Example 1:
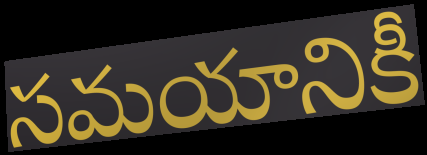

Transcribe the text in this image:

సమయానికీ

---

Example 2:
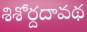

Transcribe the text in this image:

శిశోర్దదావథ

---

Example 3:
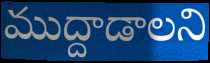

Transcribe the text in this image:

ముద్దాడాలని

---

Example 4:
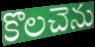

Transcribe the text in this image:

కొలచెను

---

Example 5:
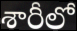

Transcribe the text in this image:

శారీలో